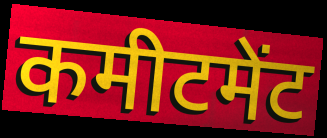
कमीटमेंट